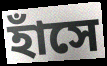
হাঁসে